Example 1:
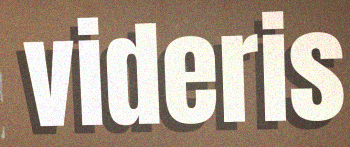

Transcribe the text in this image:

videris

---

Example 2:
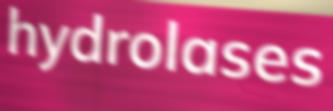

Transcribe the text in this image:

hydrolases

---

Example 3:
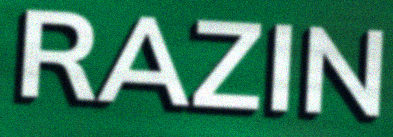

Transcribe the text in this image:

RAZIN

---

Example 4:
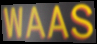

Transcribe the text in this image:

WAAS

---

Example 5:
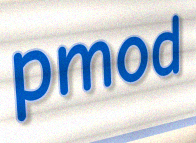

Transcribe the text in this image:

pmod